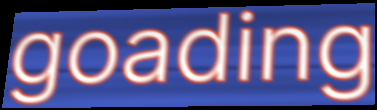
goading